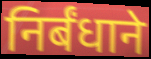
निर्बंधाने